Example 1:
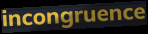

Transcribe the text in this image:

incongruence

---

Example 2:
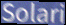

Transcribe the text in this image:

Solari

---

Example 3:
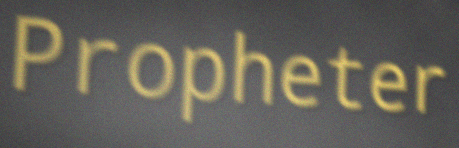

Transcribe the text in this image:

Propheter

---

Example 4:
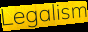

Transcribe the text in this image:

Legalism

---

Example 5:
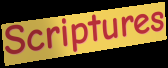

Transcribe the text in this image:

Scriptures